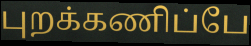
புறக்கணிப்பே